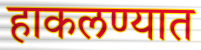
हाकलण्यात